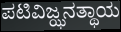
ಪಟಿವಿಜ್ಝನತ್ಥಾಯ